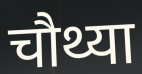
चौथ्या